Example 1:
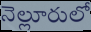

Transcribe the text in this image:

నెల్లూరులో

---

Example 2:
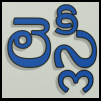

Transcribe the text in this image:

లెస్లీ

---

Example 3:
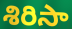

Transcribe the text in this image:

శిరిసా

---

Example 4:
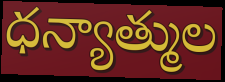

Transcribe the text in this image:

ధన్యాత్ముల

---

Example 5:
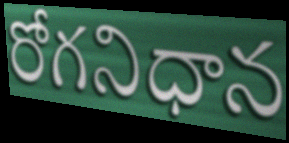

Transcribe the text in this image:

రోగనిధాన